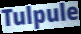
Tulpule